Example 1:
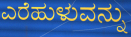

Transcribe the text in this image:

ಎರೆಹುಳುವನ್ನು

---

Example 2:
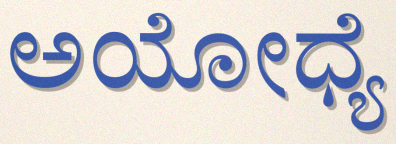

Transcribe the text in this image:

ಅಯೋಧ್ಯೆ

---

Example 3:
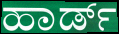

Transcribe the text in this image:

ಹಾರ್ಡ್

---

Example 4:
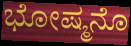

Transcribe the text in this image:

ಭೋಷ್ಮನೊ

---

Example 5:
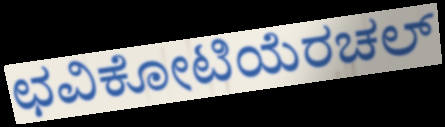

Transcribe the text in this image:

ಛವಿಕೋಟಿಯೆರಚಲ್